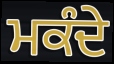
ਮਕੰਦੇ